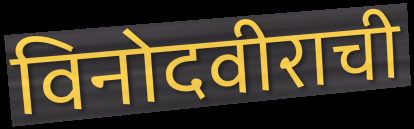
विनोदवीराची